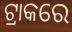
ଟ୍ରାକରେ